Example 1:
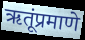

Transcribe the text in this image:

ऋतूंप्रमाणे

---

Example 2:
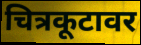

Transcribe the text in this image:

चित्रकूटावर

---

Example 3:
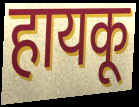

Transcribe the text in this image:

हायकू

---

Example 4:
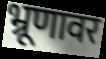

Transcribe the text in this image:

भ्रूणावर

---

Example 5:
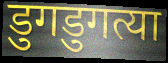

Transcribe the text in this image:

डुगडुगत्या